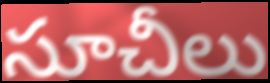
సూచీలు